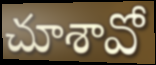
చూశావో